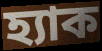
হ্যাক